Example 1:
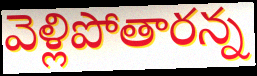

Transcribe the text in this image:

వెళ్లిపోతారన్న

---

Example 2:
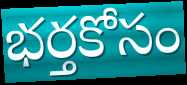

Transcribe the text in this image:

భర్తకోసం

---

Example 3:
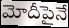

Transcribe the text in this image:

మోదీపైనే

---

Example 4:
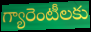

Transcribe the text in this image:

గ్యారెంటీలకు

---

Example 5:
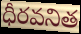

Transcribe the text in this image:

ధీరవనిత